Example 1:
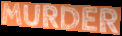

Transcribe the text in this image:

MURDER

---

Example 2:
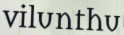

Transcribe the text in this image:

vilunthu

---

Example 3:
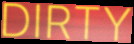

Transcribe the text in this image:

DIRTY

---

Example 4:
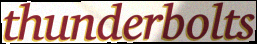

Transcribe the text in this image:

thunderbolts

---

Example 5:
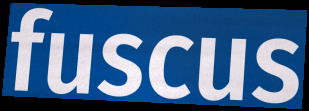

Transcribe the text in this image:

fuscus